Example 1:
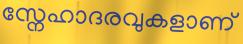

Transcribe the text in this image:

സ്നേഹാദരവുകളാണ്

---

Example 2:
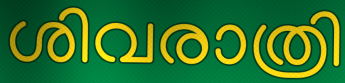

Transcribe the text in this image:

ശിവരാത്രി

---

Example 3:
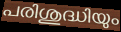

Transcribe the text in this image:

പരിശുദ്ധിയും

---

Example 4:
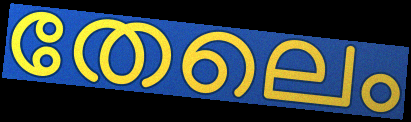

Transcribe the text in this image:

തേലെം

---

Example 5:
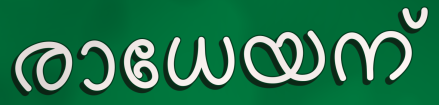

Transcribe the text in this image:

രാധേയന്